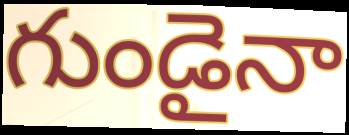
గుండైనా